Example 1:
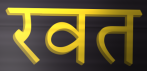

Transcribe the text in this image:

रवत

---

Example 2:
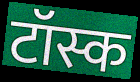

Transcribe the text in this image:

टॉस्‍क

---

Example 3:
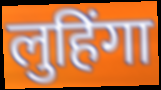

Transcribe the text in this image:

लुहिंगा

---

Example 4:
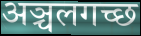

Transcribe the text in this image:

अञ्चलगच्छ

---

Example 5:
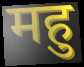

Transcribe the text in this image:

महु